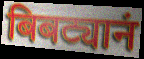
बिबट्यानं